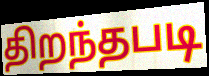
திறந்தபடி